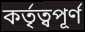
কর্তৃত্বপূর্ণ